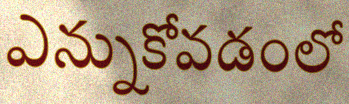
ఎన్నుకోవడంలో